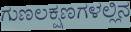
ಗುಣಲಕ್ಷಣಗಳಲ್ಲಿನ